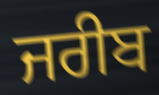
ਜਰੀਬ